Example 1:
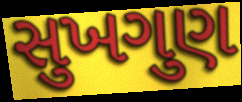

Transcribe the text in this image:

સુખગુણ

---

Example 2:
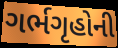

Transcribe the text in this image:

ગર્ભગૃહોની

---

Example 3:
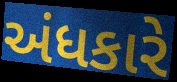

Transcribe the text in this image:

અંધકારે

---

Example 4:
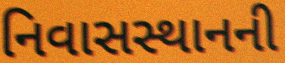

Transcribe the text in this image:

નિવાસસ્થાનની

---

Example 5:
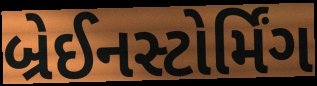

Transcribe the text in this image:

બ્રેઈનસ્ટોર્મિંગ